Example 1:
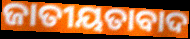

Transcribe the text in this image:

ଜାତୀୟତାବାଦ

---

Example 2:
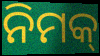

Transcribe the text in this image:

ନିମକ୍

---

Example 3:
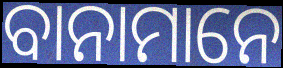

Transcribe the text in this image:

ବାନାମାନେ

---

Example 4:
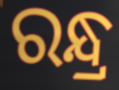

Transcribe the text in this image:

ରନ୍ଧ୍ର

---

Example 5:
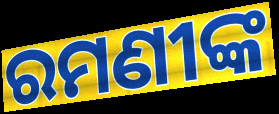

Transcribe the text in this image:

ରମଣୀଙ୍କ